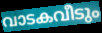
വാടകവീടും